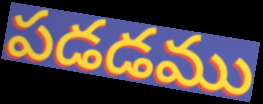
పడడము